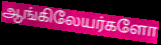
ஆங்கிலேயர்களோ